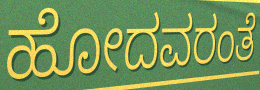
ಹೋದವರಂತೆ